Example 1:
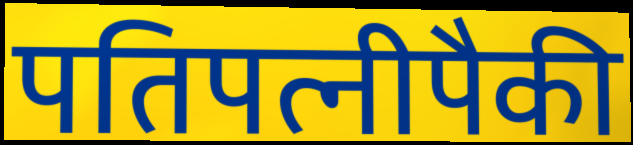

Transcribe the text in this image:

पतिपत्नीपैकी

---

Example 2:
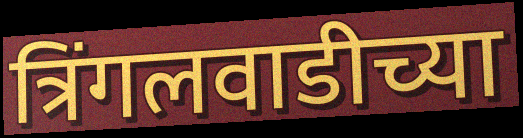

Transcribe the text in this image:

त्रिंगलवाडीच्या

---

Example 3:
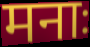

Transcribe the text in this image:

मनाः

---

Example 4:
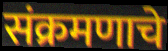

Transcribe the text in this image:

संक्रमणाचे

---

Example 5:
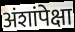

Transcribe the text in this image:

अंशांपेक्षा